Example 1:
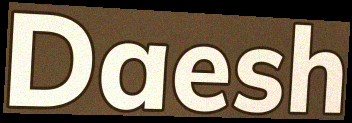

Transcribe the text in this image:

Daesh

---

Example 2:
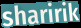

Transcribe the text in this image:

sharirik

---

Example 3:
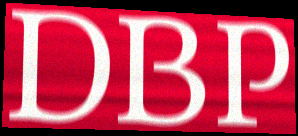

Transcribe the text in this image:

DBP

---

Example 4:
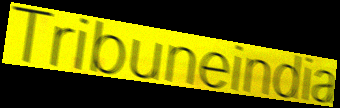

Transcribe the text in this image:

Tribuneindia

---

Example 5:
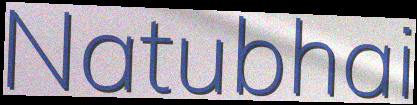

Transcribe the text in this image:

Natubhai